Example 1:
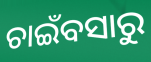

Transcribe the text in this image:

ଚାଇଁବସାରୁ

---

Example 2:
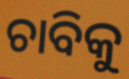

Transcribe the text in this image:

ଚାବିକୁ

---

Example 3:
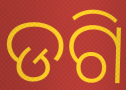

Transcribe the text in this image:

ଡଗି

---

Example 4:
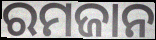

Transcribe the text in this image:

ରମଜାନ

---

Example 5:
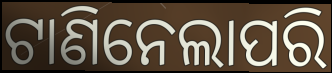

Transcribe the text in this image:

ଟାଣିନେଲାପରି